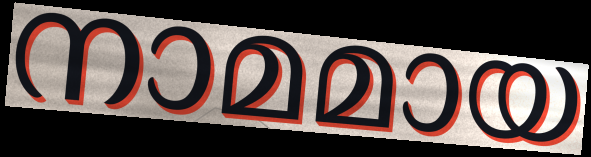
നാമമായ